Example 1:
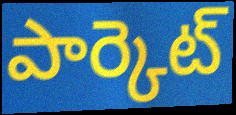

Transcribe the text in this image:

పార్కెట్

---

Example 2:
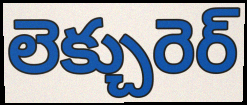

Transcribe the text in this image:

లెక్చురెర్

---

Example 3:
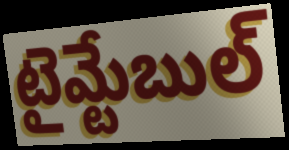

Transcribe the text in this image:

టైమ్టేబుల్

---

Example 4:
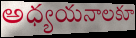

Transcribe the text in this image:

అధ్యయనాలకూ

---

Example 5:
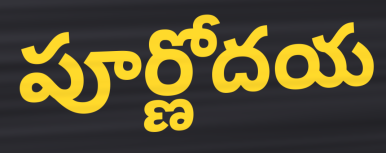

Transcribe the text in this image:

పూర్ణోదయ